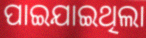
ପାଇଯାଇଥିଲା